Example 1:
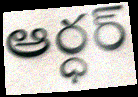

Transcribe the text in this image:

ఆర్ధర్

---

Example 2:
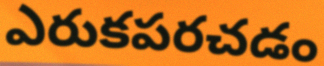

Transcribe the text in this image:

ఎరుకపరచడం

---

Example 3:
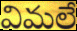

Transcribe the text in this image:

విమలే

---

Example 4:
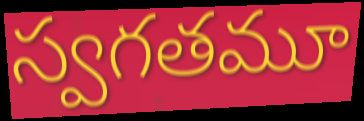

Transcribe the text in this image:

స్వగతమూ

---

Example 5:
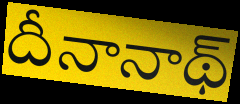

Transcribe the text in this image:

దీనానాథ్